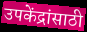
उपकेंद्रांसाठी